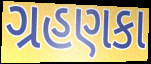
ગ્રહણકા